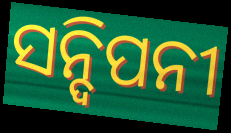
ସନ୍ଦିପନୀ